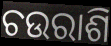
ଚଉରାଶି